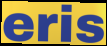
eris